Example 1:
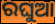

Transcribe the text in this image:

ରଘୁଆ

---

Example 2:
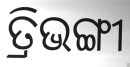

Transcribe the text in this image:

ତ୍ରିଭଙ୍ଗୀ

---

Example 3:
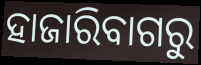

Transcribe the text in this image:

ହାଜାରିବାଗରୁ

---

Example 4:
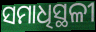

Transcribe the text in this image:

ସମାଧିସ୍ଥଳୀ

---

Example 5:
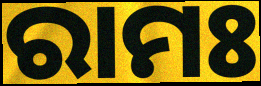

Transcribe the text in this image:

ରାମଃ